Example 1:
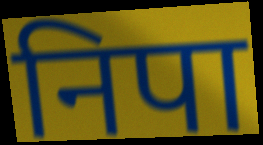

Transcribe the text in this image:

निपा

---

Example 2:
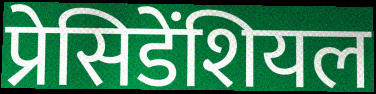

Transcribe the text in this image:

प्रेसिडेंशियल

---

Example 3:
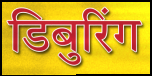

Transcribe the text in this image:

डिबुरिंग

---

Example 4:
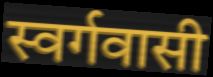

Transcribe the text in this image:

स्‍वर्गवासी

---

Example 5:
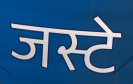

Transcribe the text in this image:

जस्टे